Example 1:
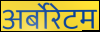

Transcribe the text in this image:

अर्बोरेटम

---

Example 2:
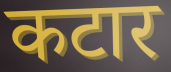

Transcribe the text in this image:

कटार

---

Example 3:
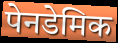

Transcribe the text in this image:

पेनडेमिक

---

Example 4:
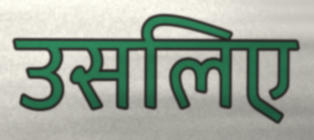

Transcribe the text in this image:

उसलिए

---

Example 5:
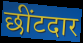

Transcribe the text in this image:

छींटदार